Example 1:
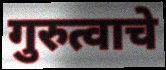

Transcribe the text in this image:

गुरुत्वाचे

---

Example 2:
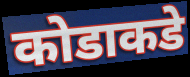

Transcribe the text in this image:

कोडाकडे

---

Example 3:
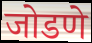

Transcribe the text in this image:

जोडणे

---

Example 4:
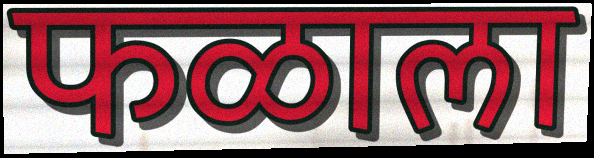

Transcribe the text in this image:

फळाला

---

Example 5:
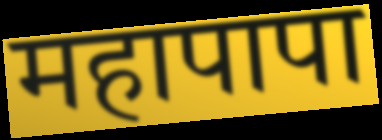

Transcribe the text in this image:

महापापा